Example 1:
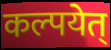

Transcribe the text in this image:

कल्पयेत्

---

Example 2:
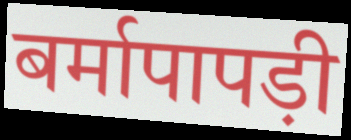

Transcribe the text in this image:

बर्मापापड़ी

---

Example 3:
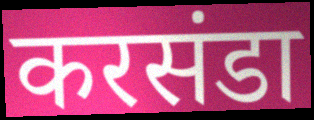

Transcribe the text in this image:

करसंडा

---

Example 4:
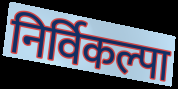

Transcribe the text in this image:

निर्विकल्पा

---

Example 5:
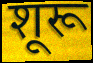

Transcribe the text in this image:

शूरू